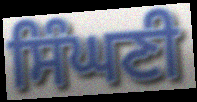
ਸਿੰਘਣੀ